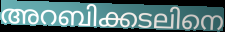
അറബിക്കടലിനെ